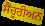
ਸੈਂਚੂਰੀਅਨ